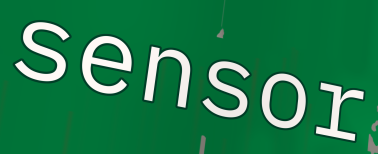
sensor